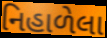
નિહાળેલા